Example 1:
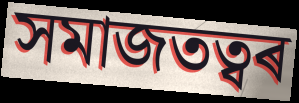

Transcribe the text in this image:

সমাজতত্বৰ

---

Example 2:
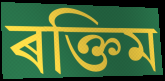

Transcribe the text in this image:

ৰক্তিম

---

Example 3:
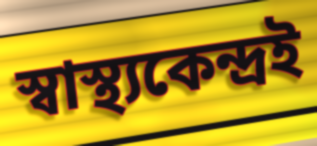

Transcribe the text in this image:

স্বাস্থ্যকেন্দ্ৰই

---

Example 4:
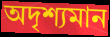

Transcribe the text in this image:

অদৃশ্যমান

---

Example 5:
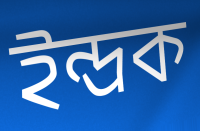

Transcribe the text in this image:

ইন্দ্ৰক